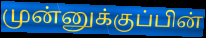
முன்னுக்குப்பின்